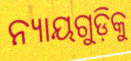
ନ୍ୟାୟଗୁଡ଼ିକୁ